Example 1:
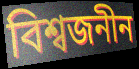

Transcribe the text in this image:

বিশ্বজনীন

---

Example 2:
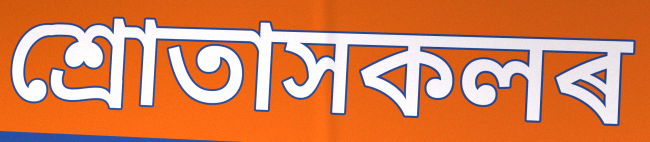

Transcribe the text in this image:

শ্ৰোতাসকলৰ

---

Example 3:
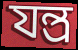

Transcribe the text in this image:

যন্ত্ৰ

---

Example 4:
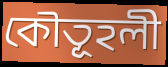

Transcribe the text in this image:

কৌতূহলী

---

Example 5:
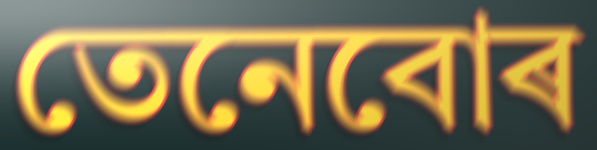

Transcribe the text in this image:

তেনেবোৰ